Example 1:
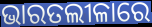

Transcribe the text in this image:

ଭାରତଲୀଳାରେ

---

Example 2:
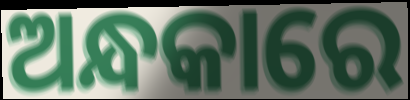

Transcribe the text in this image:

ଅନ୍ଧକାରେ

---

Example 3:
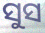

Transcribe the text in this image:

ସୁସ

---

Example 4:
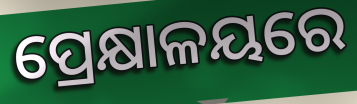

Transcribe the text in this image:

ପ୍ରେକ୍ଷାଳୟରେ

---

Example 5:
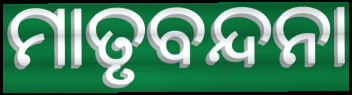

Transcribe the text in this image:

ମାତୃବନ୍ଦନା